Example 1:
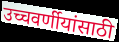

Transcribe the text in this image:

उच्चवर्णीयांसाठी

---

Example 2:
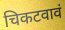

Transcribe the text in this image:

चिकटवावं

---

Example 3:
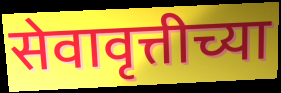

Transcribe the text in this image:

सेवावृत्तीच्या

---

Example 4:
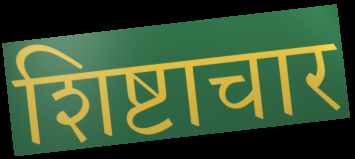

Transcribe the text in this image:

शिष्टाचार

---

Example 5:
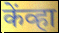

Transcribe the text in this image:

केंव्हा